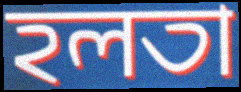
হলতা